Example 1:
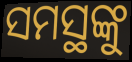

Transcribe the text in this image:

ସମସ୍ଥଙ୍କୁ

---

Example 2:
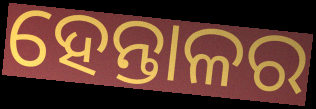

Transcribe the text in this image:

ହେନ୍ତାଳର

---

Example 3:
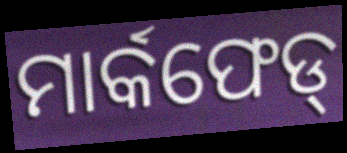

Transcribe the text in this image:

ମାର୍କଫେଡ୍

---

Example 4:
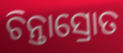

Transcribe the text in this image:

ଚିନ୍ତାସ୍ରୋତ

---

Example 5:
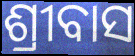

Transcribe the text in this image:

ଶ୍ରୀବାସ